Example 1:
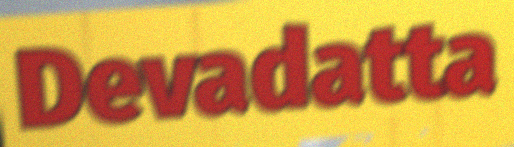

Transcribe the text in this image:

Devadatta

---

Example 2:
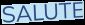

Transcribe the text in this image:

SALUTE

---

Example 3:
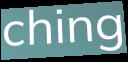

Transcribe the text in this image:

ching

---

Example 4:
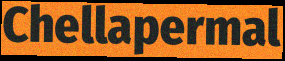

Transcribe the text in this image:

Chellapermal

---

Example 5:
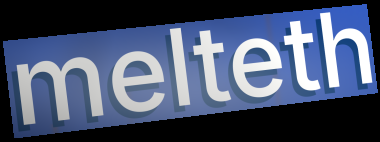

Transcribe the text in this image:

melteth